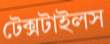
টেক্সটাইলস